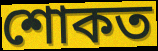
শোকত